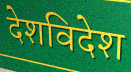
देशविदेश